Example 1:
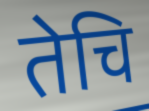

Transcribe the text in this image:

तेचि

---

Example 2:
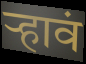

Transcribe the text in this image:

र्‍हावं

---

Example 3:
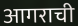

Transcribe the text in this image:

आगराची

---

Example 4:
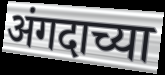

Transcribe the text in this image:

अंगदाच्या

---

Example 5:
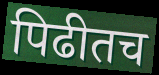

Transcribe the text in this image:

पिढीतच